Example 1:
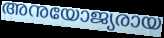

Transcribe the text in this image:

അനുയോജ്യരായ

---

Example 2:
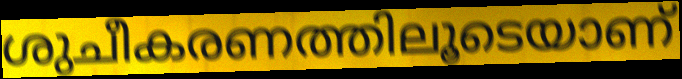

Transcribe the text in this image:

ശുചീകരണത്തിലൂടെയാണ്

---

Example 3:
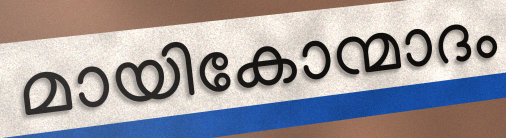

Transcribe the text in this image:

മായികോന്മാദം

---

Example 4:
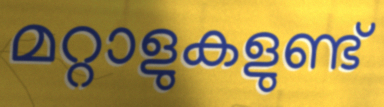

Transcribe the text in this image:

മറ്റാളുകളുണ്ട്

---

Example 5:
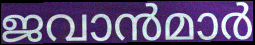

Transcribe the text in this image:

ജവാൻമാർ